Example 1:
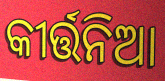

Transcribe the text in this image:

କୀର୍ତ୍ତନିଆ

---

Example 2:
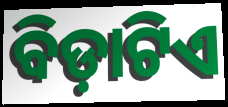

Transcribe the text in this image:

ବିଡ଼ାଟିଏ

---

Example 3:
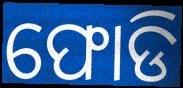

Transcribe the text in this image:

ଫୋଡି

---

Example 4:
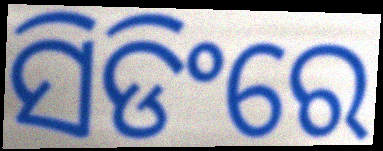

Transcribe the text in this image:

ସିଡିଂରେ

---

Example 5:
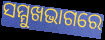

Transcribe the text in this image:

ସମ୍ମୁଖଭାଗରେ